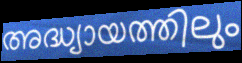
അദ്ധ്യായത്തിലും